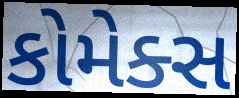
કોમેક્સ